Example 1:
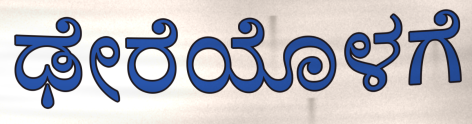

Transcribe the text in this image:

ಢೇರೆಯೊಳಗೆ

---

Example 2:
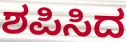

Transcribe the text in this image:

ಶಪಿಸಿದ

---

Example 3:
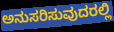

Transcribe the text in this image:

ಅನುಸರಿಸುವುದರಲ್ಲಿ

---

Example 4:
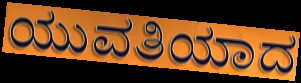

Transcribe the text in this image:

ಯುವತಿಯಾದ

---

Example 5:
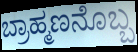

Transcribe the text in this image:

ಬ್ರಾಹ್ಮಣನೊಬ್ಬ